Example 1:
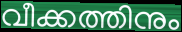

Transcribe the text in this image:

വീക്കത്തിനും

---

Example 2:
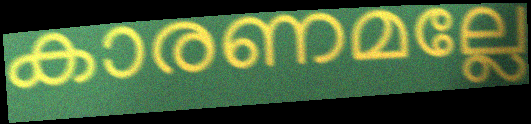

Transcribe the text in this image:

കാരണമല്ലേ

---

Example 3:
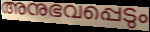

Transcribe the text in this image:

അനുഭവപ്പെടും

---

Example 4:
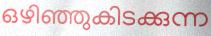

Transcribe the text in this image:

ഒഴിഞ്ഞുകിടക്കുന്ന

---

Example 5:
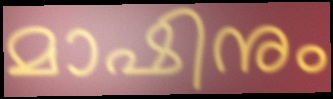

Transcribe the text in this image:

മാഷിനും